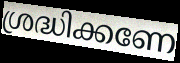
ശ്രദ്ധിക്കണേ